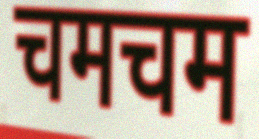
चमचम